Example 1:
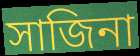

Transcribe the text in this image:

সাজিনা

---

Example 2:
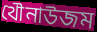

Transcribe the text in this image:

থৌনাউজম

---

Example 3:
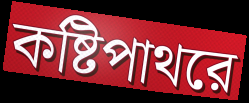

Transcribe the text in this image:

কষ্টিপাথরে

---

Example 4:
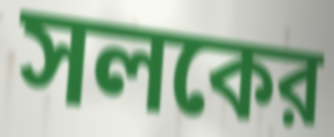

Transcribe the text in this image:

সলকের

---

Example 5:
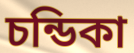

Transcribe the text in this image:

চন্ডিকা